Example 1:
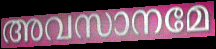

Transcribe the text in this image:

അവസാനമേ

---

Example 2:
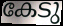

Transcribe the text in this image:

കേടു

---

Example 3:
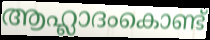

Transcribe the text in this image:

ആഹ്ലാദംകൊണ്ട്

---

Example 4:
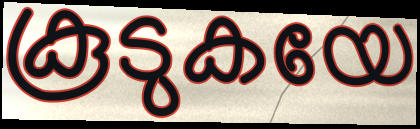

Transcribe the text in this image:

കൂടുകയേ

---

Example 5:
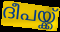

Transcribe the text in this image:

ദീപയ്ക്ക്